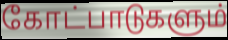
கோட்பாடுகளும்